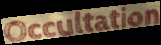
Occultation